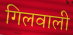
गिलवाली